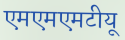
एमएमएमटीयू